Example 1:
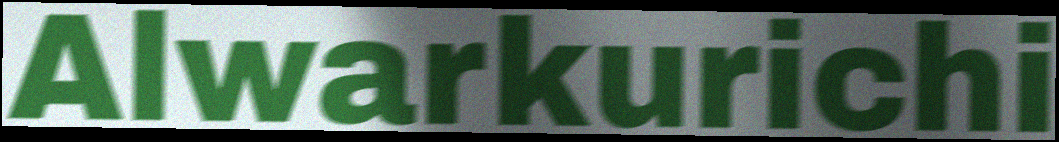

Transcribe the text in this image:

Alwarkurichi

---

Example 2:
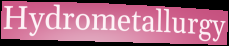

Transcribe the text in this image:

Hydrometallurgy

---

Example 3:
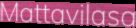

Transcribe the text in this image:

Mattavilasa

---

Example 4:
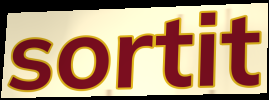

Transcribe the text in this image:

sortit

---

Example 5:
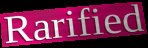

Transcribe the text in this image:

Rarified